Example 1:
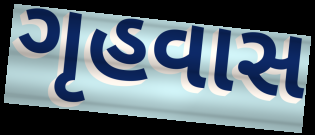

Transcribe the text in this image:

ગૃહવાસ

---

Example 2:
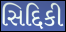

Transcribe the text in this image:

સિદ્દિકી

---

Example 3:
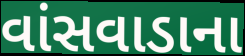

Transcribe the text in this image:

વાંસવાડાના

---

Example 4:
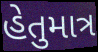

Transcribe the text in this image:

હેતુમાત્ર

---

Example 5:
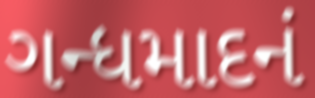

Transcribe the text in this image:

ગન્ધમાદનં